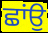
ਛਾਂਉ